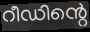
റീഡിന്റെ